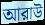
আরাউ